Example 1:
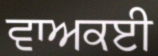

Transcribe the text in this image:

ਵਾਅਕਈ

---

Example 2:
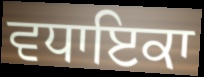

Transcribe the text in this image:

ਵਧਾਇਕਾ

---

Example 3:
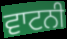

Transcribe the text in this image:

ਵਾਟਨੀ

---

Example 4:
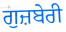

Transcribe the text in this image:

ਗੁਜ਼ਬੇਰੀ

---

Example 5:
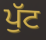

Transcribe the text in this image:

ਪੁੱਟ